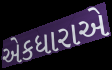
એકધારાએ